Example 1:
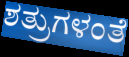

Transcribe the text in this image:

ಶತ್ರುಗಳಂತೆ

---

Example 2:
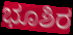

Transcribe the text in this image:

ಭೂಶಿರ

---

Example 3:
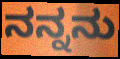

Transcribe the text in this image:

ನನ್ನನು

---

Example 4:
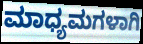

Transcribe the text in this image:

ಮಾಧ್ಯಮಗಳಾಗಿ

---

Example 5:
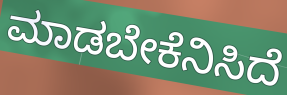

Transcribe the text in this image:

ಮಾಡಬೇಕೆನಿಸಿದೆ